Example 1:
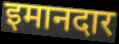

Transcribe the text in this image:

इमानदार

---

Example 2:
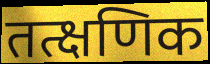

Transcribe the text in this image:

तत्क्षणिक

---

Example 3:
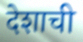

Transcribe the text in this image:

देशाची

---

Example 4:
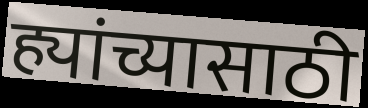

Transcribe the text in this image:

ह्यांच्यासाठी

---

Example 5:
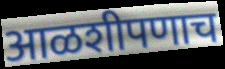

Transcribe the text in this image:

आळशीपणाच